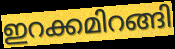
ഇറക്കമിറങ്ങി